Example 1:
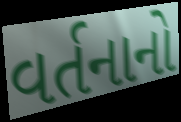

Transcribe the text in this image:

વર્તનાનો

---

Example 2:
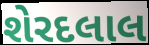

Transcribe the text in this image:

શેરદલાલ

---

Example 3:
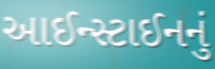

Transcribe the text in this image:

આઈન્સ્ટાઈનનું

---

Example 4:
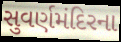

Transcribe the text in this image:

સુવર્ણમંદિરના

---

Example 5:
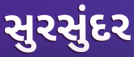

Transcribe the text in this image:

સુરસુંદર